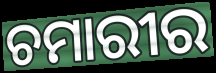
ଚମାରୀର